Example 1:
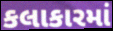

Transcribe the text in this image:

કલાકારમાં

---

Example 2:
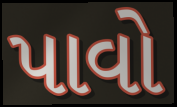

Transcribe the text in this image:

પાવો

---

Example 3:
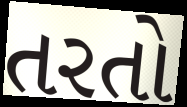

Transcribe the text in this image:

તરતો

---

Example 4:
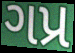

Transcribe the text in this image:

ગપ્ર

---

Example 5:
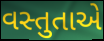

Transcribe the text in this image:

વસ્તુતાએ